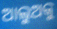
ଆଲୁଅକୁ